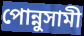
পোন্নুসামী